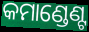
କମାଣ୍ଡେଣ୍ଟ